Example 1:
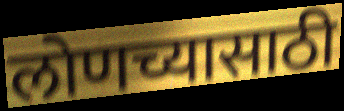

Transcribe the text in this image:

लोणच्यासाठी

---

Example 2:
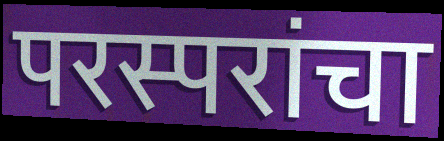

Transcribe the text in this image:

परस्परांचा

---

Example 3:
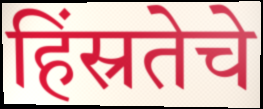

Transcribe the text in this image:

हिंस्रतेचे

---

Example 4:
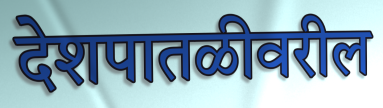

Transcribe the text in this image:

देशपातळीवरील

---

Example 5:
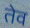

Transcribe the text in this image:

तेव